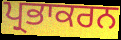
ਪ੍ਰਭਾਕਰਨ